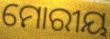
ମୋରୀୟ